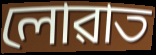
লোৱাত